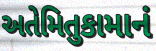
અતેમિતુકામાનં